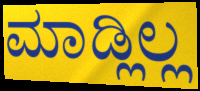
ಮಾಡ್ಲಿಲ್ಲ